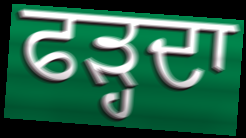
ਫੜ੍ਹਦਾ